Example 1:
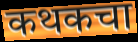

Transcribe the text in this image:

कथकचा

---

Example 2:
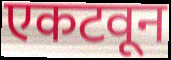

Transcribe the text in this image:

एकटवून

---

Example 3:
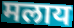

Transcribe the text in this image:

मलाय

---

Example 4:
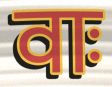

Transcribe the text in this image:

वाः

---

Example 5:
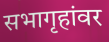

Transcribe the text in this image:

सभागृहांवर